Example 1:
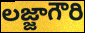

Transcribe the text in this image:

లజ్జాగౌరి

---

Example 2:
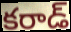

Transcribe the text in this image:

కరాడ్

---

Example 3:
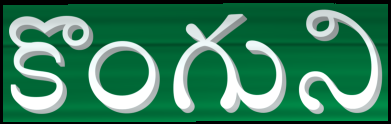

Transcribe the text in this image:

కొంగుని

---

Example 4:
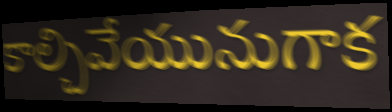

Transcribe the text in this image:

కాల్చివేయునుగాక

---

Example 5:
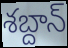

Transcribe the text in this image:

శబ్దాన్